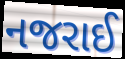
નજરાઈ